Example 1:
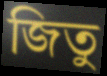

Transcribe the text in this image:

জিতু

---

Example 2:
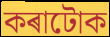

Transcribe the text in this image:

কৰাটোক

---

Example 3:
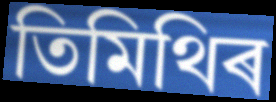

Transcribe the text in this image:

তিমিথিৰ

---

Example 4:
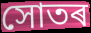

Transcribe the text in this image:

সোতৰ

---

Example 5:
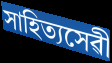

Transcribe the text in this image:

সাহিত্যসেৱী